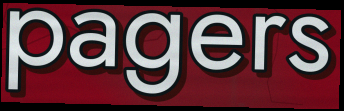
pagers